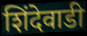
शिंदेवाडी